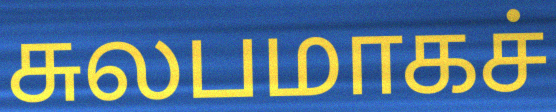
சுலபமாகச்